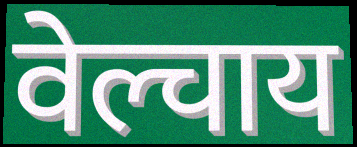
वेल्चाय